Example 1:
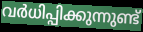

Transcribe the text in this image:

വർധിപ്പിക്കുന്നുണ്ട്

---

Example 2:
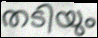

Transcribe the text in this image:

തടിയും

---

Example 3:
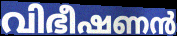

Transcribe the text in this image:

വിഭീഷണൻ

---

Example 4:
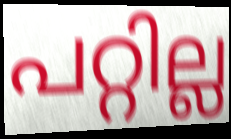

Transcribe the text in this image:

പറ്റില്ല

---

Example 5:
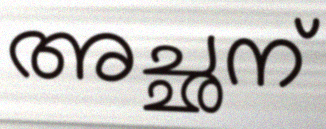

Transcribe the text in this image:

അച്ഛന്